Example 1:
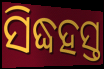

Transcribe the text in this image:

ସିଦ୍ଧହସ୍ତ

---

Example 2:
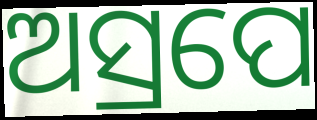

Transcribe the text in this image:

ଅସ୍ରପେ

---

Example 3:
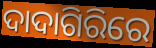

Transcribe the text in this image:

ଦାଦାଗିରିରେ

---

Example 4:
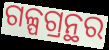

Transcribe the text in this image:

ଗଳ୍ପଗ୍ରନ୍ଥର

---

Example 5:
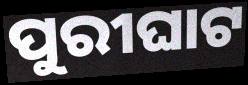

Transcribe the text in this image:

ପୁରୀଘାଟ